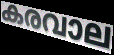
കരവാല